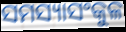
ସମସ୍ୟାସଂକୁଳ